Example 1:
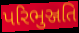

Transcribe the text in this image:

પરિભુઞ્જતિ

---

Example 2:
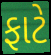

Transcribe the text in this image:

ફાટે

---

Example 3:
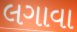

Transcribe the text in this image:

લગાવા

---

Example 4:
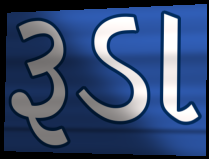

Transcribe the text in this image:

રૂડા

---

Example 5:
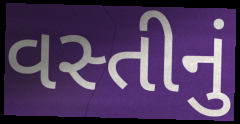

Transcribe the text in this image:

વસ્તીનું